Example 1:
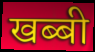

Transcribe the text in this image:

खब्बी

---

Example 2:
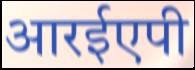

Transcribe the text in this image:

आरईएपी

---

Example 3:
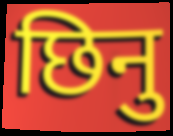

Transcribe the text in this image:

छिनु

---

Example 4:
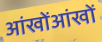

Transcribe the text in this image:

आंखोंआंखों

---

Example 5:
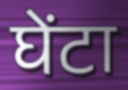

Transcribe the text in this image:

घेंटा